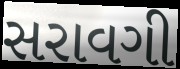
સરાવગી